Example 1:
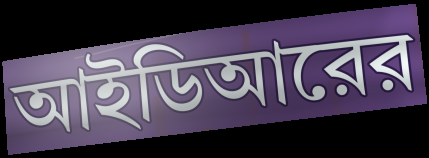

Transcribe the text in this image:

আইডিআরের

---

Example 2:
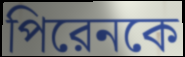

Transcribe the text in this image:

পিরেনকে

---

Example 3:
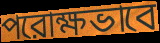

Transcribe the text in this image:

পরোক্ষভাবে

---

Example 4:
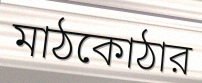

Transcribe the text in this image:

মাঠকোঠার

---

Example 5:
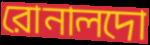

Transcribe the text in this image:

রোনালদো